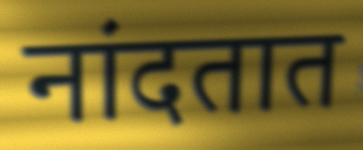
नांदतात